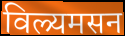
विल्यमसन